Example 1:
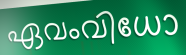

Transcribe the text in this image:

ഏവംവിധോ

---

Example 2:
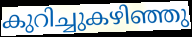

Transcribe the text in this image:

കുറിച്ചുകഴിഞ്ഞു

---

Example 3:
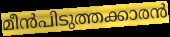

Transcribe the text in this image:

മീൻപിടുത്തക്കാരൻ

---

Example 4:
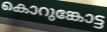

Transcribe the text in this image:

കൊറുങ്കോട്ട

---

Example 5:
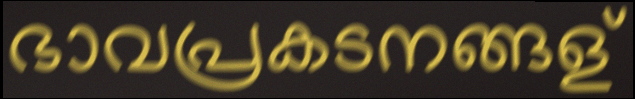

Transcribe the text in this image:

ഭാവപ്രകടനങ്ങള്